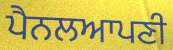
ਪੈਨਲਆਪਣੀ